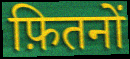
फ़ितनों